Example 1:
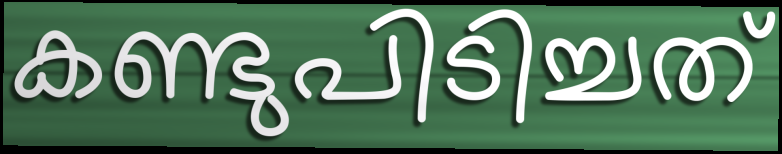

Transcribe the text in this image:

കണ്ടുപിടിച്ചത്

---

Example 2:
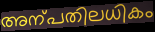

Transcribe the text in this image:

അന്പതിലധികം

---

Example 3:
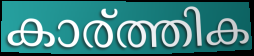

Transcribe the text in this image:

കാര്ത്തിക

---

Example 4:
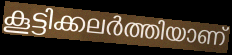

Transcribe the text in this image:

കൂട്ടിക്കലർത്തിയാണ്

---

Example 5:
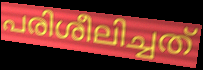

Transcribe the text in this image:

പരിശീലിച്ചത്